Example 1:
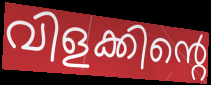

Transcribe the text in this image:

വിളക്കിന്റെ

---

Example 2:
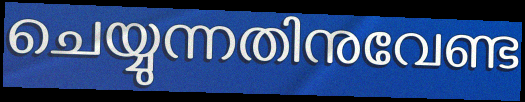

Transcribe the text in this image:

ചെയ്യുന്നതിനുവേണ്ട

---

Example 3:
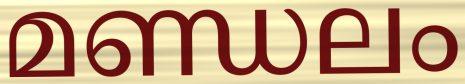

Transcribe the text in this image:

മണ്ഡലം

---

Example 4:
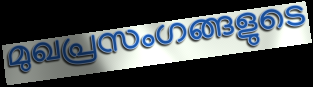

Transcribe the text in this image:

മുഖപ്രസംഗങ്ങളുടെ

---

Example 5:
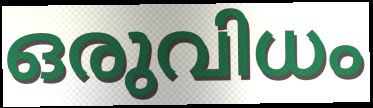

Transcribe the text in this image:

ഒരുവിധം